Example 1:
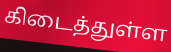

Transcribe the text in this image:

கிடைத்துள்ள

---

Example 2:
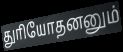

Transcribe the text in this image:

துரியோதனனும்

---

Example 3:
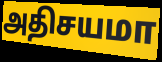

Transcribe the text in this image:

அதிசயமா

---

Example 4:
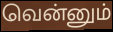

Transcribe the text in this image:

வென்னும்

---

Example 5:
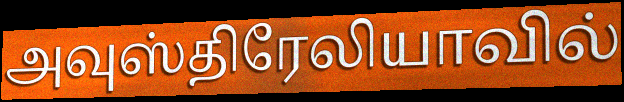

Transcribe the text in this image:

அவுஸ்திரேலியாவில்